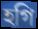
হগি